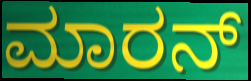
ಮಾರನ್